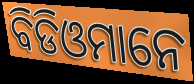
ବିଡିଓମାନେ